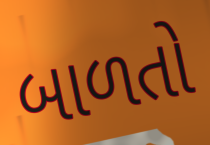
બાળતો